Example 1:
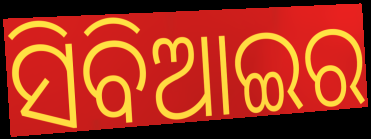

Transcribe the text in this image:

ସିବିଆଇର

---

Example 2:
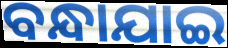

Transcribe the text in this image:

ବନ୍ଧାଯାଇ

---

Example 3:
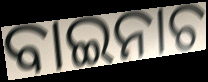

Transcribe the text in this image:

ବାଇନାଚ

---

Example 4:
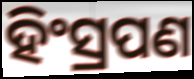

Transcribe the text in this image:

ହିଂସ୍ରପଣ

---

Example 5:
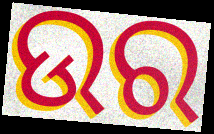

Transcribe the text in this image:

ଉର